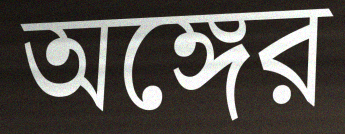
অঙ্গের